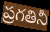
ప్రగతినీ